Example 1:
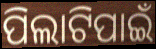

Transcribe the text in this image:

ପିଲାଟିପାଇଁ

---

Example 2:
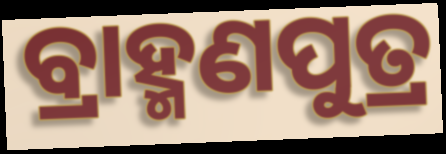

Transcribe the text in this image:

ବ୍ରାହ୍ମଣପୁତ୍ର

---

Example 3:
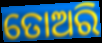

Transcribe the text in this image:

ତୋଅରି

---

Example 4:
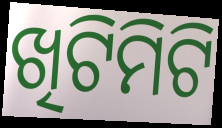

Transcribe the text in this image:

ଖିଟିମିଟି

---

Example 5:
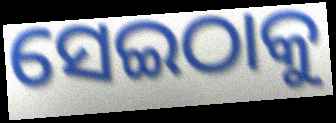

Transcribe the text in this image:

ସେଇଠାକୁ